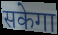
सकेगा